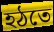
হঠতে